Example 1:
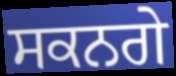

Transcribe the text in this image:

ਸਕਨਗੇ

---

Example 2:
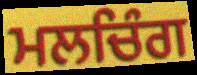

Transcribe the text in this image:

ਮਲਚਿੰਗ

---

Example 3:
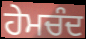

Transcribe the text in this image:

ਹੇਮਚੰਦ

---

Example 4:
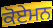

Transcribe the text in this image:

ਕੋਏਮਨ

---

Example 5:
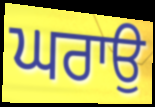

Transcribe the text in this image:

ਘਰਾਉ